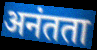
अनंतता